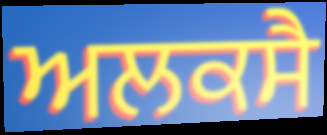
ਅਲਕਸੈ